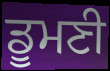
ਡੂਮਣੀ